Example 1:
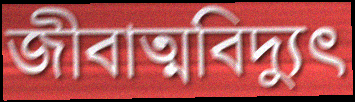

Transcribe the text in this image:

জীবাত্মবিদ্যুৎ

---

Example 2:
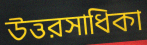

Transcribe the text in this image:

উত্তরসাধিকা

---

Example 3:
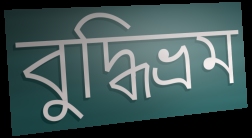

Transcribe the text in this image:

বুদ্ধিভ্রম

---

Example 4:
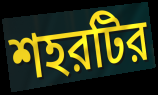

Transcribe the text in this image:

শহরটির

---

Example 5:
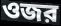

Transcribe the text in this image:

ওজর